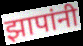
झापांनी